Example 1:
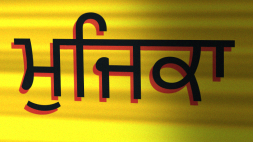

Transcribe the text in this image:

ਮੁਜਿਕਾ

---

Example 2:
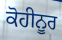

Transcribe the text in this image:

ਕੋਹੀਨੂਰ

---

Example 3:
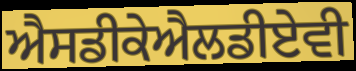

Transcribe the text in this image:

ਐਸਡੀਕੇਐਲਡੀਏਵੀ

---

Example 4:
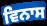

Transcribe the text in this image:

ਵਿਨਾਸ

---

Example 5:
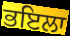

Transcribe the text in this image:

ਭਇਲਾ